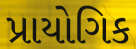
પ્રાયોગિક